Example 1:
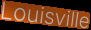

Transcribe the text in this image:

Louisville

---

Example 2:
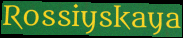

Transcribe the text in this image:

Rossiyskaya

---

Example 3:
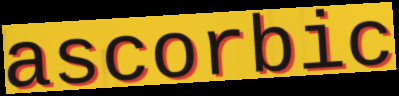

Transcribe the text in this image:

ascorbic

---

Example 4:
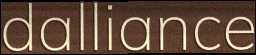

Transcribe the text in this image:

dalliance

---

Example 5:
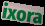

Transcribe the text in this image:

ixora